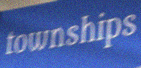
townships